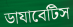
ডাযাবেটিস